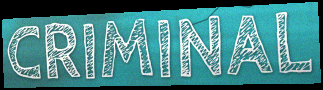
CRIMINAL